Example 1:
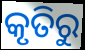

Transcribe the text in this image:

କୃତିରୁ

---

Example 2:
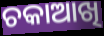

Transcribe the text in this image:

ଚକାଆଖି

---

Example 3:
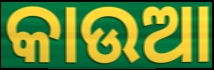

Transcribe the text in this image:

କାଉଆ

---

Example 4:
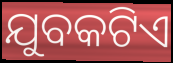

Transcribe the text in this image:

ଯୁବକଟିଏ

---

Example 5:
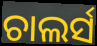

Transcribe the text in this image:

ଚାଲର୍ସ